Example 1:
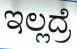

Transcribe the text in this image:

ಇಲ್ಲದ್ರೆ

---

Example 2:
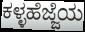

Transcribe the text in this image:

ಕಳ್ಳಹೆಜ್ಜೆಯ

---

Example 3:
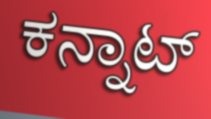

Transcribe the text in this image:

ಕನ್ನಾಟ್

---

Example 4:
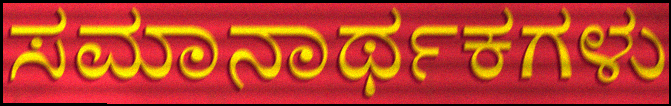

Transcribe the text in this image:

ಸಮಾನಾರ್ಥಕಗಳು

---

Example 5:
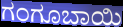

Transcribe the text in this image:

ಗಂಗೂಬಾಯಿ